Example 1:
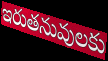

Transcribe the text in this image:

ఇరుతనువులకు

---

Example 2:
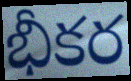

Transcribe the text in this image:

భీకర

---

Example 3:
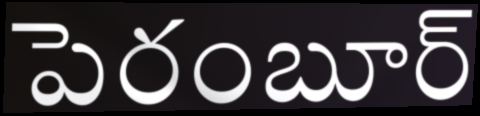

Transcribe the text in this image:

పెరంబూర్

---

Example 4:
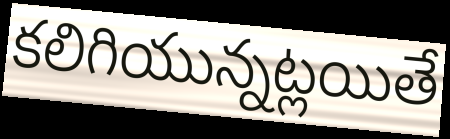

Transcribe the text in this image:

కలిగియున్నట్లయితే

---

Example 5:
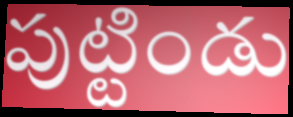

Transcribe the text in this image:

పుట్టిండు